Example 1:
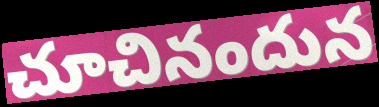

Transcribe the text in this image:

చూచినందున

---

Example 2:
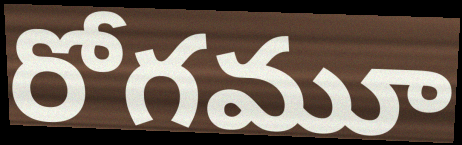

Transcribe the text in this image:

రోగమూ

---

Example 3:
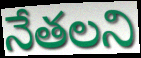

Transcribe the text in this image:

నేతలని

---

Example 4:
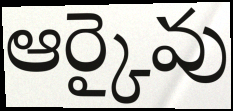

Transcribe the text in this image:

ఆర్కైవు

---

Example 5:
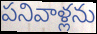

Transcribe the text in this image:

పనివాళ్లను